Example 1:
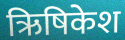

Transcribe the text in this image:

ऋिषिकेश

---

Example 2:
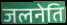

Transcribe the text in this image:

जलनेति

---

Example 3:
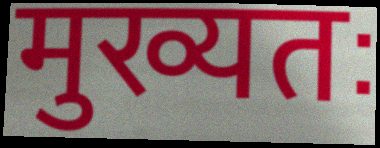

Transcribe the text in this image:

मुख्यतः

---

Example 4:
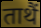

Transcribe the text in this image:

ताथैं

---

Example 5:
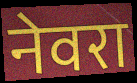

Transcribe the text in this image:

नेवरा